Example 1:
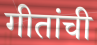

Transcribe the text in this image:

गीतांची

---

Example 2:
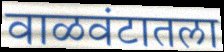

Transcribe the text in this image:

वाळवंटातला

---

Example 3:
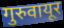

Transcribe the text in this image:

गुरुवायूर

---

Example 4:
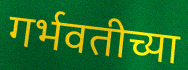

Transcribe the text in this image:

गर्भवतीच्या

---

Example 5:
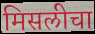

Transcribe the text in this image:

मिसलीचा